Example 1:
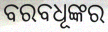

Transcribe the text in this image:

ବରବଧୂଙ୍କର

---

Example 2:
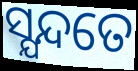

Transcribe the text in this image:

ସ୍ଯନ୍ଦତେ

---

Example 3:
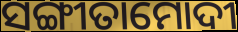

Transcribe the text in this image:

ସଙ୍ଗୀତାମୋଦୀ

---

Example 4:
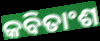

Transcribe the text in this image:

କବିତାଂଶ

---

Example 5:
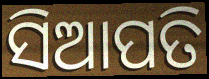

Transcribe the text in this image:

ସିଆପତି